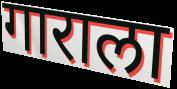
गाराला